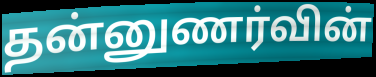
தன்னுணர்வின்